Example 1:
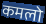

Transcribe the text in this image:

कमलो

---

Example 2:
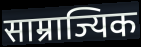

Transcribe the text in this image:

साम्राज्यिक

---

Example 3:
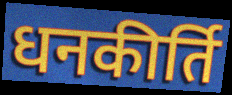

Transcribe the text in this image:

धनकीर्ति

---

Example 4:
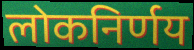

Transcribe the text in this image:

लोकनिर्णय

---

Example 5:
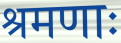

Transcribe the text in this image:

श्रमणाः